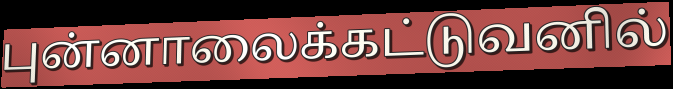
புன்னாலைக்கட்டுவனில்